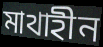
মাথাহীন